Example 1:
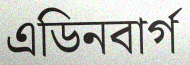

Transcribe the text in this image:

এডিনবাৰ্গ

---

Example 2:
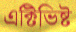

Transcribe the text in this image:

এক্টিভিষ্ট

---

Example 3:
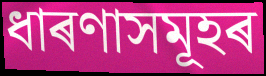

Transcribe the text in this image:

ধাৰণাসমূহৰ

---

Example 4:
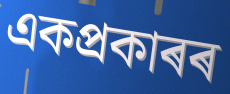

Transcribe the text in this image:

একপ্ৰকাৰৰ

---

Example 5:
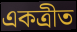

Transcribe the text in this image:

একত্ৰীত